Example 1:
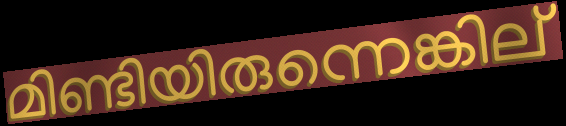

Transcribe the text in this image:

മിണ്ടിയിരുന്നെങ്കില്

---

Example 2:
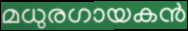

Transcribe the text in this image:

മധുരഗായകൻ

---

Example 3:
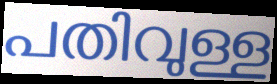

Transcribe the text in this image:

പതിവുള്ള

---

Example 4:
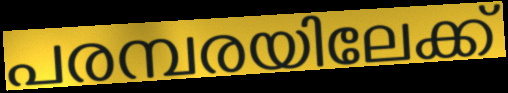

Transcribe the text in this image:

പരമ്പരയിലേക്ക്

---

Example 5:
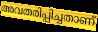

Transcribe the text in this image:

അവതരിപ്പിച്ചതാണ്